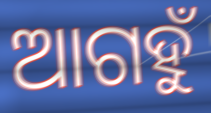
ଆଗହୁଁ